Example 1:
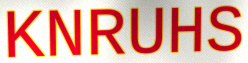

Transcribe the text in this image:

KNRUHS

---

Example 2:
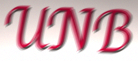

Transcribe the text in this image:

UNB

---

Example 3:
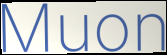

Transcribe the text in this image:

Muon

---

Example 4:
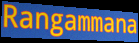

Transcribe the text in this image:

Rangammana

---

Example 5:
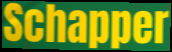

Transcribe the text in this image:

Schapper